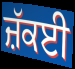
ਜ਼ੱਕਈ